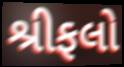
શ્રીફલો